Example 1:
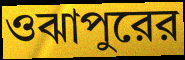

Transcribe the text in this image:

ওঝাপুরের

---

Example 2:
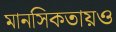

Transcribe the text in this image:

মানসিকতায়ও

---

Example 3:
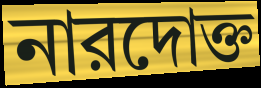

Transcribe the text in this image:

নারদোক্ত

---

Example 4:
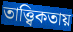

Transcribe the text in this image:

তাত্ত্বিকতায়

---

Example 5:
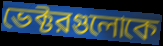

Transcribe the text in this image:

ভেক্টরগুলোকে